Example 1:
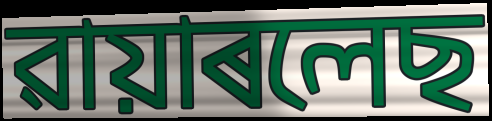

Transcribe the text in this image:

ৱায়াৰলেছ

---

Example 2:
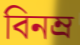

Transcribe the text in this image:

বিনম্ৰ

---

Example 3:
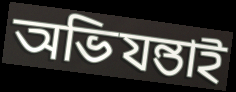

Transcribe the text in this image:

অভিযন্তাই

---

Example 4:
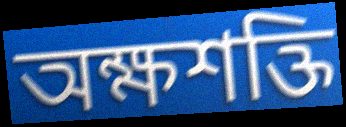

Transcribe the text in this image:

অক্ষশক্তি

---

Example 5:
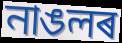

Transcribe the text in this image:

নাঙলৰ